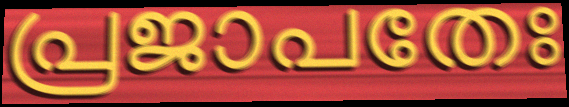
പ്രജാപതേഃ